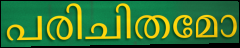
പരിചിതമോ